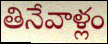
తినేవాళ్లం